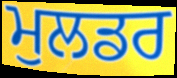
ਮੁਲਡਰ